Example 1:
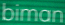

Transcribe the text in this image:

biman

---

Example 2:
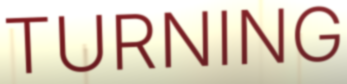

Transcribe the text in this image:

TURNING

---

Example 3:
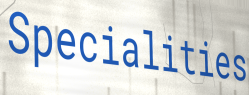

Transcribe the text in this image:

Specialities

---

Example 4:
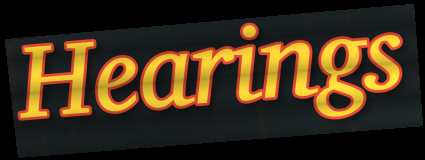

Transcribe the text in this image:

Hearings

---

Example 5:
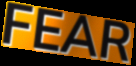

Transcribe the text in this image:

FEAR